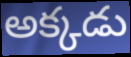
అక్కడు